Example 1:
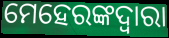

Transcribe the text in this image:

ମେହେରଙ୍କଦ୍ଵାରା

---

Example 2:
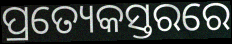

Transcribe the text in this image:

ପ୍ରତ୍ୟେକସ୍ତରରେ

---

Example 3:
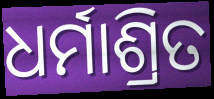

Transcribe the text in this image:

ଧର୍ମାଶ୍ରିତ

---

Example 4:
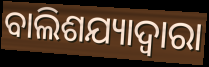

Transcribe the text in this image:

ବାଲିଶଯ୍ୟାଦ୍ଵାରା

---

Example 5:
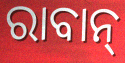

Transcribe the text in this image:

ରାବାନ୍